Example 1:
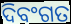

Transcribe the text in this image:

ଦିବଂଗତ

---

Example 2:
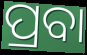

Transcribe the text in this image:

ପ୍ରବା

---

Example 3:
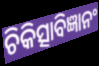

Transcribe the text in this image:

ଚିକିତ୍ସାବିଜ୍ଞାନଂ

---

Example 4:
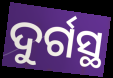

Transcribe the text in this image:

ଦୁର୍ଗସ୍ଥ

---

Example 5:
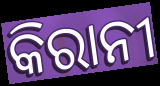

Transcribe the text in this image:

କିରାନୀ